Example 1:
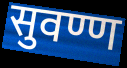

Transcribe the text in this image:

सुवण्ण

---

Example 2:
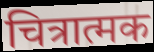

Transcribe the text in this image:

चित्रात्मक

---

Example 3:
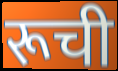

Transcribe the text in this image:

रूची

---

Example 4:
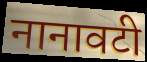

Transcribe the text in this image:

नानावटी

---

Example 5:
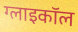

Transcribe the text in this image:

ग्लाइकॉल